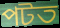
পটত